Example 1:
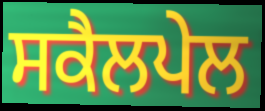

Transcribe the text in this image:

ਸਕੈਲਪੇਲ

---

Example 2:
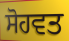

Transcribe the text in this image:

ਸੋਹਵਤ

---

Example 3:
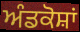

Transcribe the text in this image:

ਅੰਡਕੋਸ਼ਾਂ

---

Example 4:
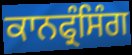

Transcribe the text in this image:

ਕਾਨਫ੍ਰੰਸਿੰਗ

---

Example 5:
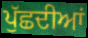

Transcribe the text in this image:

ਪੁੱਛਦੀਆਂ